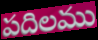
పదిలము